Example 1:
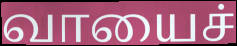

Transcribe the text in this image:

வாயைச்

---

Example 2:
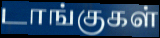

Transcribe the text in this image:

டாங்குகள்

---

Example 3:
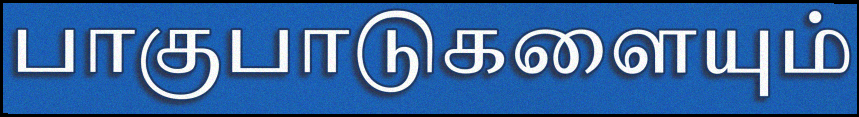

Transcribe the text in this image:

பாகுபாடுகளையும்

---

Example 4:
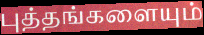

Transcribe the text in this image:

புத்தங்களையும்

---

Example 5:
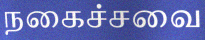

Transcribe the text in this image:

நகைச்சவை